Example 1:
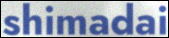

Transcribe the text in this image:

shimadai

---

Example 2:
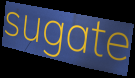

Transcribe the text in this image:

sugate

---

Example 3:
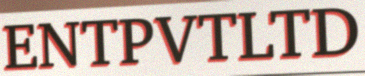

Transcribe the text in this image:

ENTPVTLTD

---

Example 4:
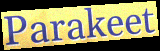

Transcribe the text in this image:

Parakeet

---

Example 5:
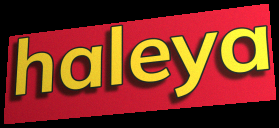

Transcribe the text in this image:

haleya